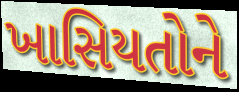
ખાસિયતોને